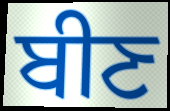
ਬੀਣ